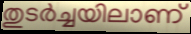
തുടർച്ചയിലാണ്